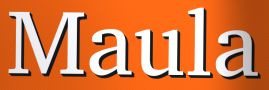
Maula